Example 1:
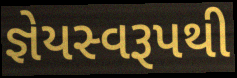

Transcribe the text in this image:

જ્ઞેયસ્વરૂપથી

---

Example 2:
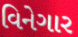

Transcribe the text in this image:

વિનેગાર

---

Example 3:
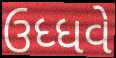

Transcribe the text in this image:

ઉધ્ધવે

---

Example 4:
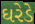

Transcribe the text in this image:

ઘરેડે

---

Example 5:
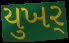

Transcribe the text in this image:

યુખર્